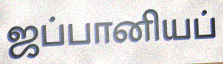
ஜப்பானியப்